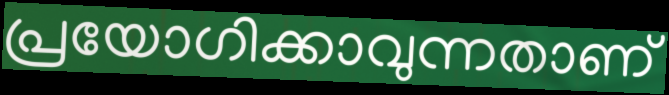
പ്രയോഗിക്കാവുന്നതാണ്